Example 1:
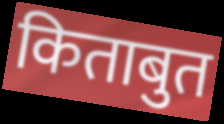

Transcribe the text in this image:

किताबुत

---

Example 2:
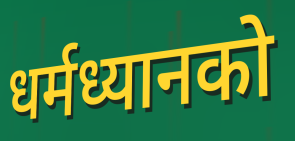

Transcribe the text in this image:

धर्मध्यानको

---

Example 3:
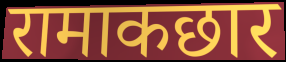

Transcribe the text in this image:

रामाकछार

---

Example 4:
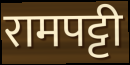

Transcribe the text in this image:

रामपट्टी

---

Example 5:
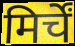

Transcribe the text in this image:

मिर्चें